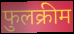
फुलक्रीम